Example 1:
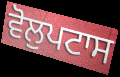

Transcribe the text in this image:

ਵੋਲੁਪਟਾਸ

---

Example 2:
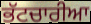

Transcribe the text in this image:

ਭੱਟਚਾਰੀਆ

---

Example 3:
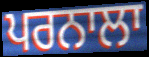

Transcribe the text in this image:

ਪਰਨਾਲਾ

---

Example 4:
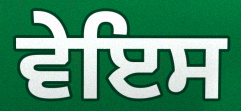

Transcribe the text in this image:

ਵੇਇਸ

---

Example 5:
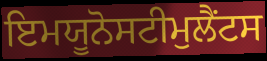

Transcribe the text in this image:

ਇਮਯੂਨੋਸਟੀਮੁਲੈਂਟਸ